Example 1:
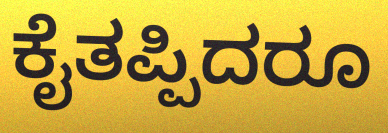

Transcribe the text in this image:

ಕೈತಪ್ಪಿದರೂ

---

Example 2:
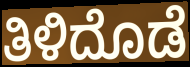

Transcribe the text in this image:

ತಿಳಿದೊಡೆ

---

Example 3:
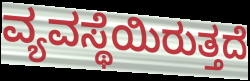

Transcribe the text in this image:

ವ್ಯವಸ್ಥೆಯಿರುತ್ತದೆ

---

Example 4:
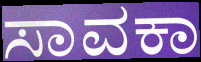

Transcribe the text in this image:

ಸಾವಕಾ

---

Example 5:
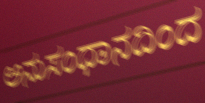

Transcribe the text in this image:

ಅನುಸಂಧಾನದಿಂದ